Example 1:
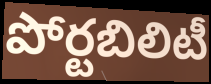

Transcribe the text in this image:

పోర్టబిలిటీ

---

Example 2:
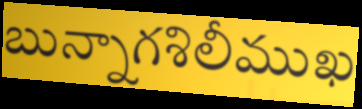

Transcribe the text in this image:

బున్నాగశిలీముఖ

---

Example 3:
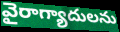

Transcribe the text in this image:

వైరాగ్యాదులను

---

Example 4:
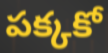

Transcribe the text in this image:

పక్కకో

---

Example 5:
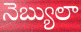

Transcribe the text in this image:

నెబ్యులా